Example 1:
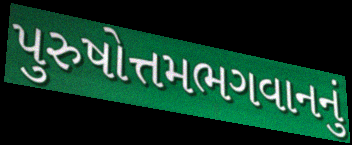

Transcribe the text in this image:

પુરુષોત્તમભગવાનનું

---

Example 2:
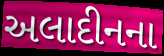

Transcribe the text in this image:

અલાદીનના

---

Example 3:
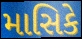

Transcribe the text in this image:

માસિકે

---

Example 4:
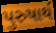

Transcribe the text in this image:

પુરુષાર્થ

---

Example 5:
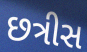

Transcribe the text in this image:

છત્રીસ